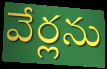
వేర్లను